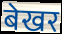
बेखर